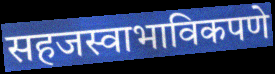
सहजस्वाभाविकपणे